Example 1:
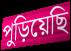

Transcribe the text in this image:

পুড়িয়েছি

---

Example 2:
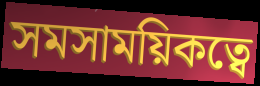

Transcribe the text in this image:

সমসাময়িকত্বে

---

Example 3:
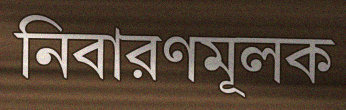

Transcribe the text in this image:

নিবারণমূলক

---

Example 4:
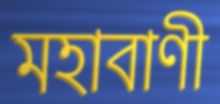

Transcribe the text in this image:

মহাবাণী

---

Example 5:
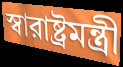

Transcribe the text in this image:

স্বারাষ্ট্রমন্ত্রী